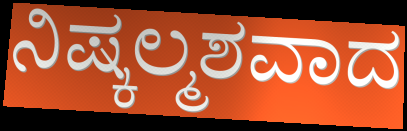
ನಿಷ್ಕಲ್ಮಶವಾದ